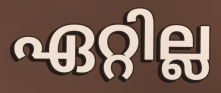
ഏറ്റില്ല